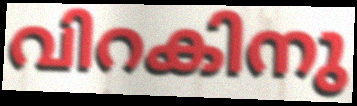
വിറകിനു